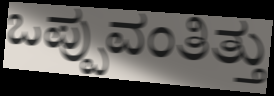
ಒಪ್ಪುವಂತಿತ್ತು